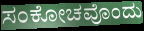
ಸಂಕೋಚವೊಂದು